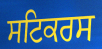
ਸਟਿਕਰਸ